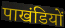
पाखंडियों